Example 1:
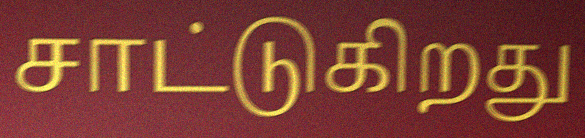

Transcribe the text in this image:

சாட்டுகிறது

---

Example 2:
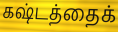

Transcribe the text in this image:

கஷ்டத்தைக்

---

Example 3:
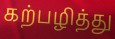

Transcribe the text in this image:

கற்பழித்து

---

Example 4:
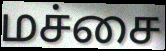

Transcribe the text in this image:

மச்சை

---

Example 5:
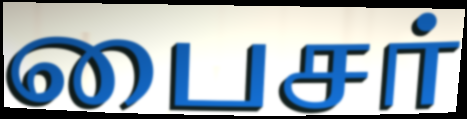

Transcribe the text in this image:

பைசர்